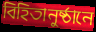
বিহিতানুষ্ঠানে